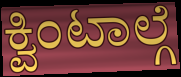
ಕ್ವಿಂಟಾಲ್ಗೆ